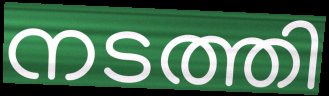
നടത്തി